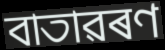
বাতাৱৰণ